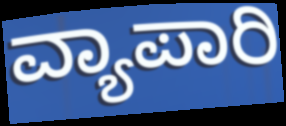
ವ್ಯಾಪಾರಿ